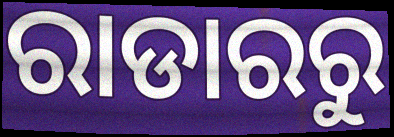
ରାଡାରରୁ